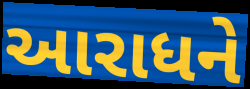
આરાધને